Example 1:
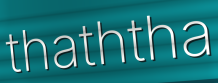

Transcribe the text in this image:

thaththa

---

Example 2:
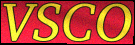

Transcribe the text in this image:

VSCO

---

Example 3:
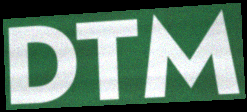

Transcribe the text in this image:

DTM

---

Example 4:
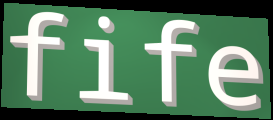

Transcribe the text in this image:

fife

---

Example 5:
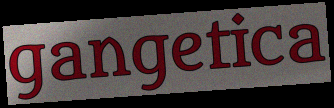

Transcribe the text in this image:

gangetica